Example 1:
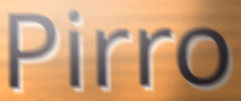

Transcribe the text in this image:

Pirro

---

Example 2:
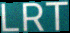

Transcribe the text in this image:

LRT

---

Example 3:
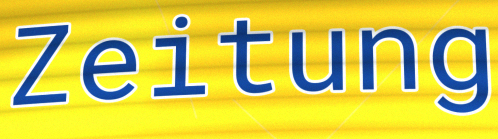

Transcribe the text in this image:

Zeitung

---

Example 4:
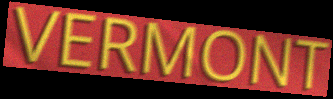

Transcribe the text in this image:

VERMONT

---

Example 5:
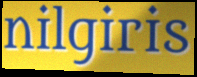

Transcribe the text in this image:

nilgiris